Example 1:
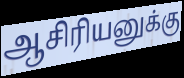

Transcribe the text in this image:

ஆசிரியனுக்கு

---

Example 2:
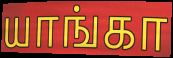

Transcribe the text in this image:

யாங்கா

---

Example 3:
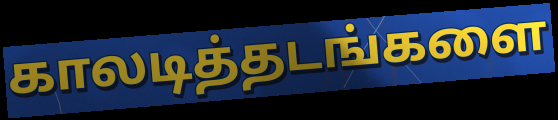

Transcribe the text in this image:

காலடித்தடங்களை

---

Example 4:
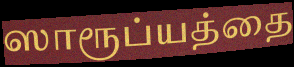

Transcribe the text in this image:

ஸாரூப்யத்தை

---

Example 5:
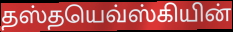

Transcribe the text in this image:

தஸ்தயெவ்ஸ்கியின்